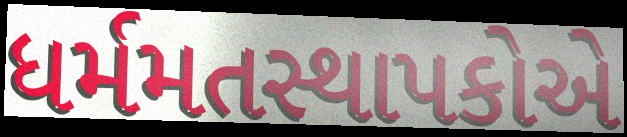
ધર્મમતસ્થાપકોએ